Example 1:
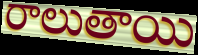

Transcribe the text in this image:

రాలుతాయి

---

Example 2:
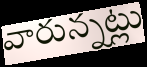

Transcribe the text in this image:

వారున్నట్లు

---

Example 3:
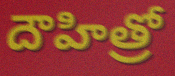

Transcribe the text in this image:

దౌహిత్రో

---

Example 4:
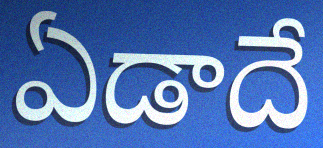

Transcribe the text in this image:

ఏడాదే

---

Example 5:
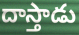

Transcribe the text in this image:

దాస్తాడు